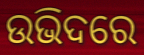
ଉଭିଦରେ